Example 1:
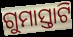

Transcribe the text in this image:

ଗୁମାସ୍ତାଟି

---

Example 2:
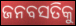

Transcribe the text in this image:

ଜନବସତିକୁ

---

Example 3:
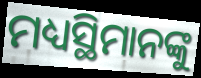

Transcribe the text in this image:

ମଧ୍ୟସ୍ଥିମାନଙ୍କୁ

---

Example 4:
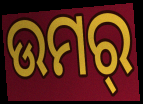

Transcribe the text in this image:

ଉମର୍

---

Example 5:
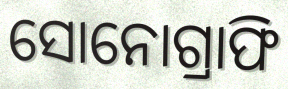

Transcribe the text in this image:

ସୋନୋଗ୍ରାଫି